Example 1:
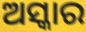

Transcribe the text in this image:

ଅସ୍କାର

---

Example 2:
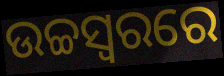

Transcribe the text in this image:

ଉଚ୍ଚସ୍ଵରରେ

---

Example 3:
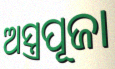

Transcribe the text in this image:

ଅସ୍ତ୍ରପୂଜା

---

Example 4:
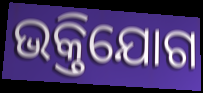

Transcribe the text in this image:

ଭକ୍ତିଯୋଗ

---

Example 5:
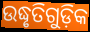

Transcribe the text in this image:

ଉଦ୍ଧୃତିଗୁଡ଼ିକ